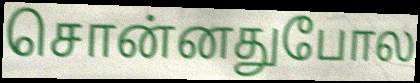
சொன்னதுபோல